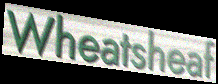
Wheatsheaf